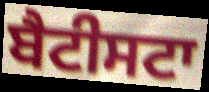
ਬੈਟੀਸਟਾ